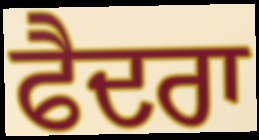
ਫੈਦਰਾ